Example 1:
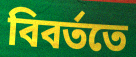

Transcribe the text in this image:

বিবর্ততে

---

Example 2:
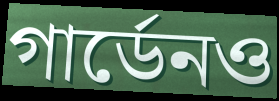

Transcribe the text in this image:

গার্ডেনও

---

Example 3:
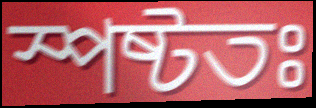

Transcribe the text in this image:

স্পষ্টতঃ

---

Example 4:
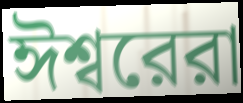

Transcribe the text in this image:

ঈশ্বরেরা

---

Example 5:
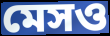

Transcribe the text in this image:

মেসও